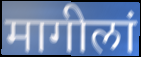
मागीलां